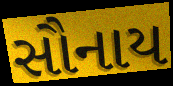
સૌનાય